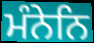
ਮੰਨੇਨਿ